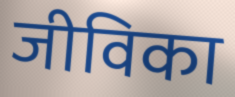
जीविका